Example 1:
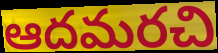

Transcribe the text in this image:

ఆదమరచి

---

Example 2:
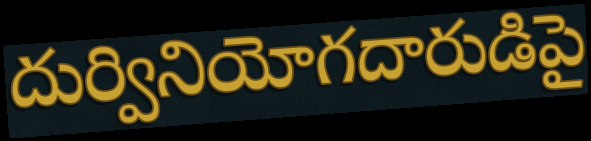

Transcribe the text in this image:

దుర్వినియోగదారుడిపై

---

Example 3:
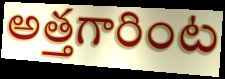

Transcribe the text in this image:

అత్తగారింట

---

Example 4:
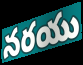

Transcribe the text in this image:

నరయు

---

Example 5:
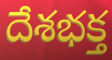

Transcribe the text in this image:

దేశభక్త